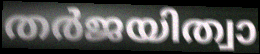
തർജയിത്വാ